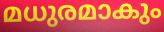
മധുരമാകും